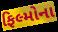
ફિલ્મોના